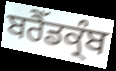
ਬਰੈੱਡਕ੍ਰੰਬ